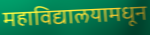
महाविद्यालयामधून